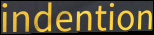
indention